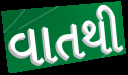
વાતથી